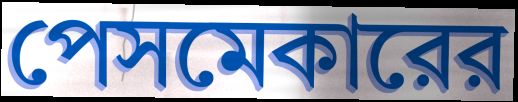
পেসমেকারের